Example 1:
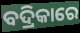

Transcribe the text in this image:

ବଦ୍ରିକାରେ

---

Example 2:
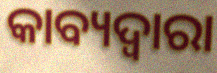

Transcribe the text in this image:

କାବ୍ୟଦ୍ୱାରା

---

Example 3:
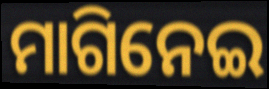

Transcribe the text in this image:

ମାଗିନେଇ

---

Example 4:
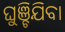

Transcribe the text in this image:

ଘୁଞ୍ଚିଯିବା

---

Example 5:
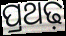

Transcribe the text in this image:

ପ୍ରଥଢ଼